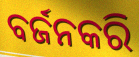
ବର୍ଜନକରି